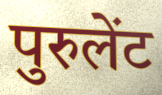
पुरुलेंट